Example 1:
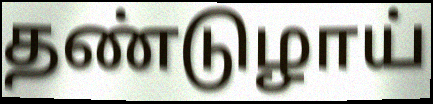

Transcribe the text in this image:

தண்டுழாய்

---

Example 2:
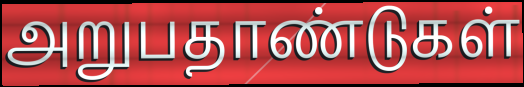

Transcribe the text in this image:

அறுபதாண்டுகள்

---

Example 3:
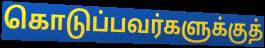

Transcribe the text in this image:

கொடுப்பவர்களுக்குத்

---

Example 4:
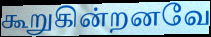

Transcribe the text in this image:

கூறுகின்றனவே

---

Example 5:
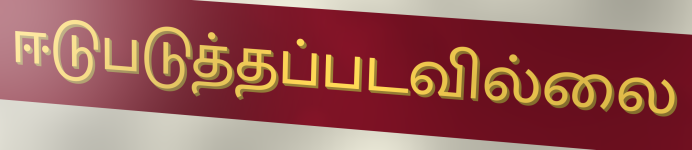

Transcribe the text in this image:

ஈடுபடுத்தப்படவில்லை